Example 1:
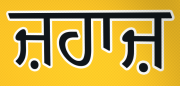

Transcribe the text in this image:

ਜ਼ਹਾਜ਼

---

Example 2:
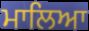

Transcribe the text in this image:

ਮਾਲਿਆ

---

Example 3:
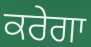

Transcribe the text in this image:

ਕਰੇਗਾ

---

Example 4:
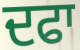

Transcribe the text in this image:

ਦਫਾ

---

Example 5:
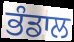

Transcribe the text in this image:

ਭੰਡਾਲ